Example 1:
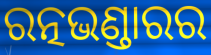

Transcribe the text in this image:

ରତ୍ନଭଣ୍ଡାରର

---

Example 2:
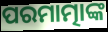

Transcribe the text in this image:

ପରମାତ୍ମାଙ୍କ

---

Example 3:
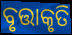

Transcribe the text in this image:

ବୃତ୍ତାକୃତି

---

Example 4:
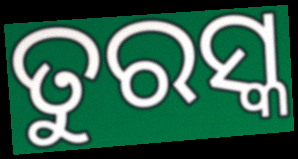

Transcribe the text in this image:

ତୁରସ୍କ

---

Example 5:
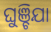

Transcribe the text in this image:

ଘୁଞ୍ଚିଯା